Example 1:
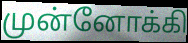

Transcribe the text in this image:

முன்னோக்கி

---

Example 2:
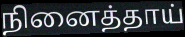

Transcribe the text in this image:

நினைத்தாய்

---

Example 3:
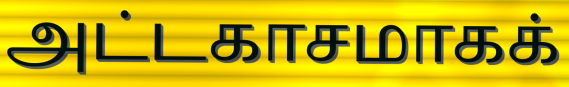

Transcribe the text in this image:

அட்டகாசமாகக்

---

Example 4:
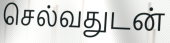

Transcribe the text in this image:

செல்வதுடன்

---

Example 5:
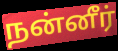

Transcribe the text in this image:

நன்னீர்